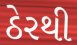
ઠેરથી